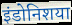
इंडोनिशया